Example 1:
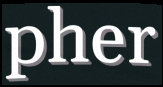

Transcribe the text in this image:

pher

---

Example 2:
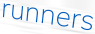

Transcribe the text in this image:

runners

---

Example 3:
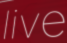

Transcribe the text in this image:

live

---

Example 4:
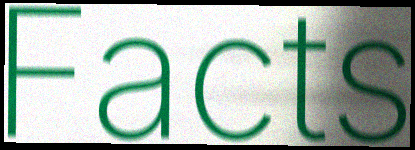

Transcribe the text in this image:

Facts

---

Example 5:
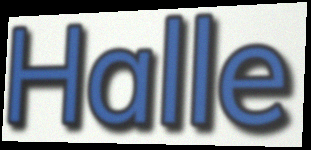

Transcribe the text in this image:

Halle